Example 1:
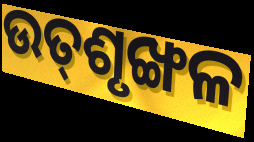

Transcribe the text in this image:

ଉତ୍‌ଶୃଙ୍ଖଳ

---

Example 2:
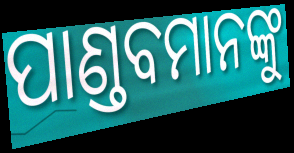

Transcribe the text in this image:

ପାଣ୍ଡବମାନଙ୍କୁ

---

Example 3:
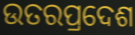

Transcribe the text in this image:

ଉତରପ୍ରଦେଶ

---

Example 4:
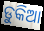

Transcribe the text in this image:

ଡୁକିଆ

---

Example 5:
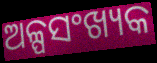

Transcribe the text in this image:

ଅଳ୍ପସଂଖ୍ୟକ